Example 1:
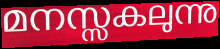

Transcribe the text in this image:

മനസ്സകലുന്നു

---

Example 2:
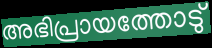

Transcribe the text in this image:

അഭിപ്രായത്തോടു്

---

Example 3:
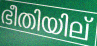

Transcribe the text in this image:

ഭീതിയില്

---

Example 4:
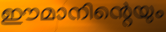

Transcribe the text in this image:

ഈമാനിന്റെയും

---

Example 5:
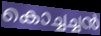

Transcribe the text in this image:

കൊച്ചച്ചൻ